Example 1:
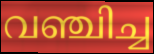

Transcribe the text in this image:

വഞ്ചിച്ച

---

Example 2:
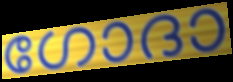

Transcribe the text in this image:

ഗോദാ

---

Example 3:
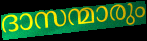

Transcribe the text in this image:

ദാസന്മാരും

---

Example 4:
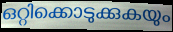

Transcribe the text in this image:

ഒറ്റിക്കൊടുക്കുകയും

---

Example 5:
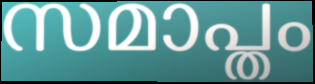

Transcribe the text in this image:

സമാപ്തം